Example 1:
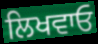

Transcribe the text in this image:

ਲਿਖਵਾਓ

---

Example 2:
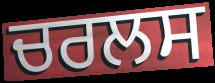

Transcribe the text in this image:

ਚਰਲਸ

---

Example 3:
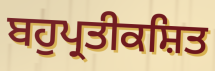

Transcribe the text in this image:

ਬਹੁਪ੍ਰਤੀਕਸ਼ਿਤ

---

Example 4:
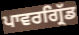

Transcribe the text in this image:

ਪਾਵਰਗ੍ਰਿੱਡ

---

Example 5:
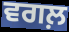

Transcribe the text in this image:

ਵਗਲ਼